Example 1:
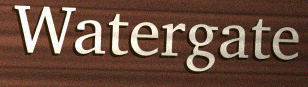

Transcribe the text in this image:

Watergate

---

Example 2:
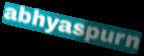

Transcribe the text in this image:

abhyaspurn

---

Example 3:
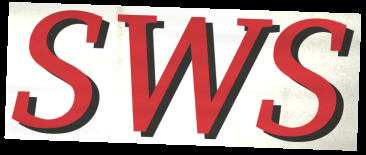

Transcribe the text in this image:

SWS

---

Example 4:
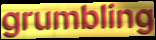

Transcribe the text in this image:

grumbling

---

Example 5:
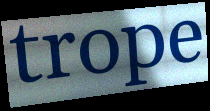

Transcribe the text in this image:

trope